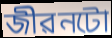
জীৱনটো